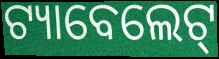
ଟ୍ୟାବେଲେଟ୍